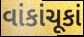
વાંકાંચૂકાં